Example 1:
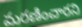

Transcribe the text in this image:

మరణించారని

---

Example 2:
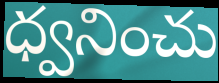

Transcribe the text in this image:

ధ్వనించు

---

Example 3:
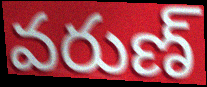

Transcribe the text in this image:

వరుణ్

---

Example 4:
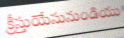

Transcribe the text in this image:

క్రీస్తుయేసునుండియు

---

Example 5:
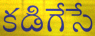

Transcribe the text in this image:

కడిగేసే